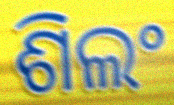
ଶିଲଂ